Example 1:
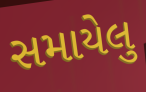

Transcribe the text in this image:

સમાયેલુ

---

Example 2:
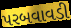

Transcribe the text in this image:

પરબવાવડી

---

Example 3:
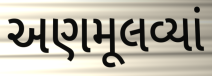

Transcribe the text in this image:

અણમૂલવ્યાં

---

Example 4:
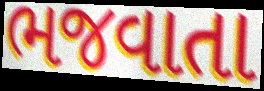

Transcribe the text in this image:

ભજવાતા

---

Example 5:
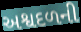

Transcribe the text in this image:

અશ્વદળની